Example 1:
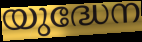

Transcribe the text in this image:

യുദ്ധേന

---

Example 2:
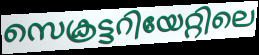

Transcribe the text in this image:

സെക്രട്ടറിയേറ്റിലെ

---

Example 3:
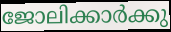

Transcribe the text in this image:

ജോലിക്കാർക്കു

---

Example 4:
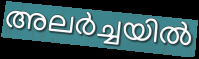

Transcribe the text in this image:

അലർച്ചയിൽ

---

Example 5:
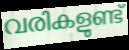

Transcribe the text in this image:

വരികളുണ്ട്